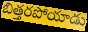
బిత్తరపోయాడు